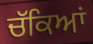
ਚੱਕਿਆਂ